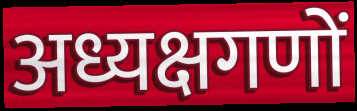
अध्यक्षगणों